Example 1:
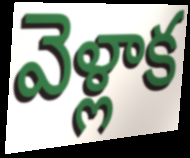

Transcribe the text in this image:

వెళ్లాక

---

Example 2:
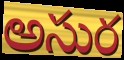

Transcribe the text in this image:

అసుర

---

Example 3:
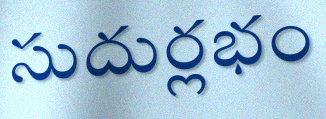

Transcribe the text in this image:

సుదుర్లభం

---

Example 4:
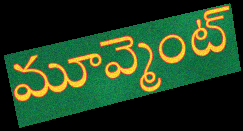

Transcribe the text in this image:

మూవ్మెంట్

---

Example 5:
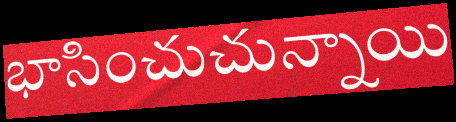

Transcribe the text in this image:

భాసించుచున్నాయి